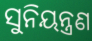
ସୁନିୟନ୍ତ୍ରଣ